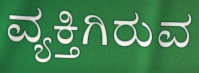
ವ್ಯಕ್ತಿಗಿರುವ